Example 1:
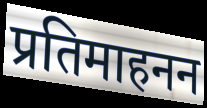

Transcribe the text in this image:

प्रतिमाहनन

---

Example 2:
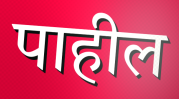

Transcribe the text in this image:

पाहील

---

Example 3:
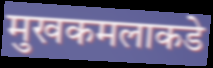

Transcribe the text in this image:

मुखकमलाकडे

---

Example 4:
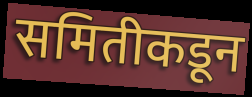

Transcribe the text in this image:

समितीकडून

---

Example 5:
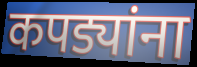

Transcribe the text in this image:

कपड्यांना